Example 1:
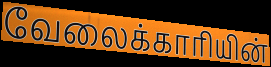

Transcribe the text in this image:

வேலைக்காரியின்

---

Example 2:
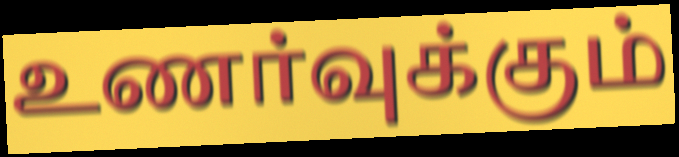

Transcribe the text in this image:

உணர்வுக்கும்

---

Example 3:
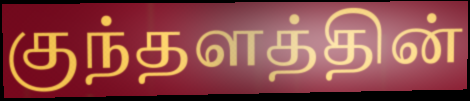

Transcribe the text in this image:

குந்தளத்தின்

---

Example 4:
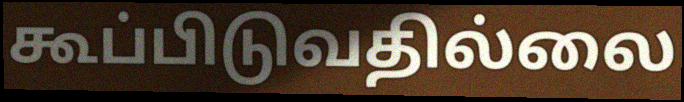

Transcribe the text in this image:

கூப்பிடுவதில்லை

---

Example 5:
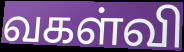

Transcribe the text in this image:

வகள்வி